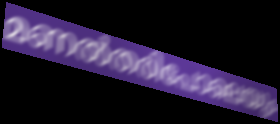
മണൽതരിപോലെയും